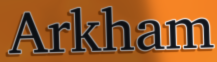
Arkham